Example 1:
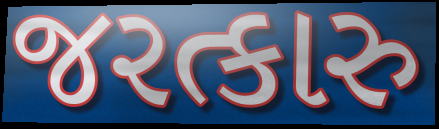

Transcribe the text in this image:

જરત્કારુ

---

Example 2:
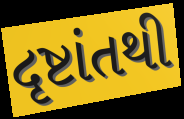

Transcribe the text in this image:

દૃષ્ટાંતથી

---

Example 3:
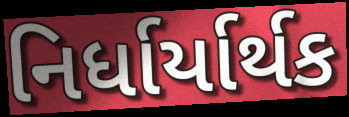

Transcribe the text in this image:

નિર્ધાર્યાર્થક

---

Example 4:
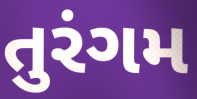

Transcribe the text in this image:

તુરંગમ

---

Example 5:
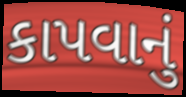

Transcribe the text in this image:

કાપવાનું